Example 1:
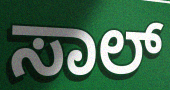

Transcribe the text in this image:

ಸಾಲ್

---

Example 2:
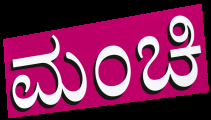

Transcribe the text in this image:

ಮಂಚಿ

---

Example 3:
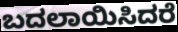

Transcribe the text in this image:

ಬದಲಾಯಿಸಿದರೆ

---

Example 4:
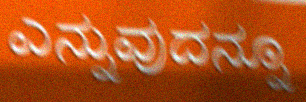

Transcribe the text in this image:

ಎನ್ನುವುದನ್ನೂ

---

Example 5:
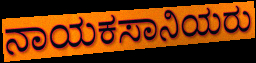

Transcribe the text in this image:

ನಾಯಕಸಾನಿಯರು